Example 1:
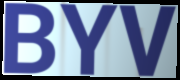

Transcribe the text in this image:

BYV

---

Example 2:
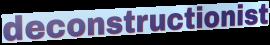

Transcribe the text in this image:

deconstructionist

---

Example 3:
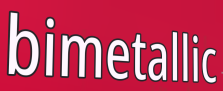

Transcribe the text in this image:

bimetallic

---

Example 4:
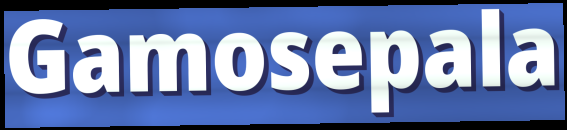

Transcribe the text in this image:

Gamosepala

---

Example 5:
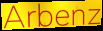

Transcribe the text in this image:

Arbenz